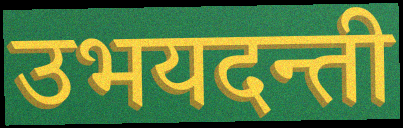
उभयदन्ती